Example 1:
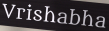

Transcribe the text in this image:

Vrishabha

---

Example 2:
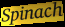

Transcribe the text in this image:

Spinach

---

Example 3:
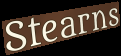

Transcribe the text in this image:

Stearns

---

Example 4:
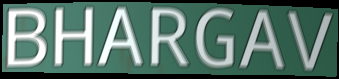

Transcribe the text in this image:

BHARGAV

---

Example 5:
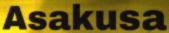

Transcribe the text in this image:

Asakusa